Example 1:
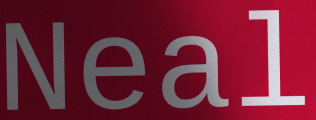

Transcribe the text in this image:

Neal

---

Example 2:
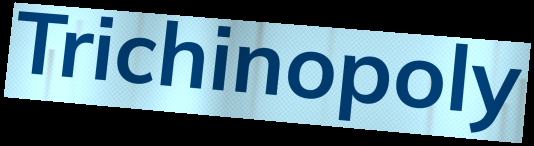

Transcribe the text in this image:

Trichinopoly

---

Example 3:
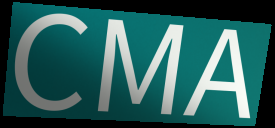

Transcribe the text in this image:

CMA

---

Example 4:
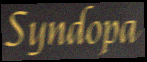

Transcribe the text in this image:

Syndopa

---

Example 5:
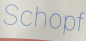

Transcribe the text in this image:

Schopf